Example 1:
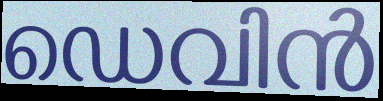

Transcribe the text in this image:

ഡെവിൻ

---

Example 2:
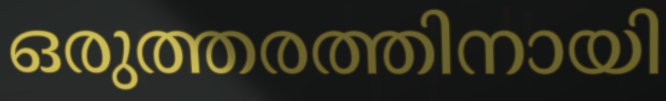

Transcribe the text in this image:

ഒരുത്തരത്തിനായി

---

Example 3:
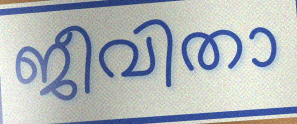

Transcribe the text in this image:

ജീവിതാ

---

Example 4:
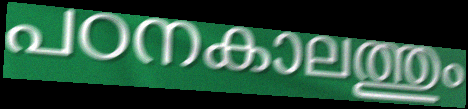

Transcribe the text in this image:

പഠനകാലത്തും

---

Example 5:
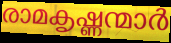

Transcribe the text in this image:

രാമകൃഷ്ണന്മാർ